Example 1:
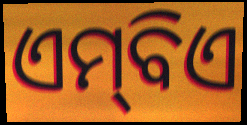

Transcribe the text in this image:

ଏମ୍‌ବିଏ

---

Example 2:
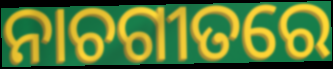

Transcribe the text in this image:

ନାଚଗୀତରେ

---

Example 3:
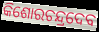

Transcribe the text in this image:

କିଶୋରଚନ୍ଦ୍ରଦେବ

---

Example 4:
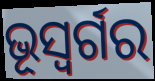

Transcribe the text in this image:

ଭୂସ୍ବର୍ଗର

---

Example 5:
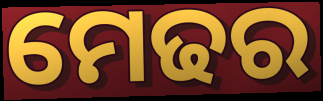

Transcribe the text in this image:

ମେଢର